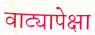
वाट्यापेक्षा